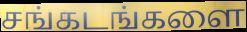
சங்கடங்களை